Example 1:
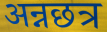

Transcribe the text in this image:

अन्नछत्र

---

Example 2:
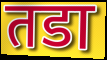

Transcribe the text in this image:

तडा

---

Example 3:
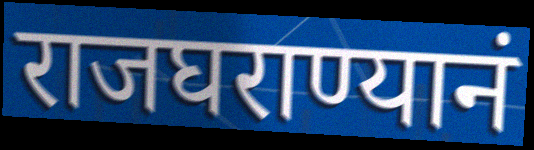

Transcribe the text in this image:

राजघराण्यानं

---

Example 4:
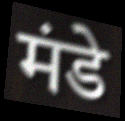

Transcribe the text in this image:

मंडे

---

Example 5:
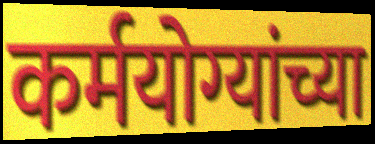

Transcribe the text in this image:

कर्मयोग्यांच्या